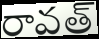
రావత్